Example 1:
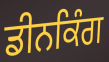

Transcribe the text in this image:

ਡੀਨਕਿੰਗ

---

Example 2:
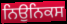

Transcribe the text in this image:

ਨਿਉਨਿਕਸ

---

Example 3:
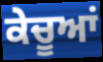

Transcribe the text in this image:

ਕੇਚੂਆਂ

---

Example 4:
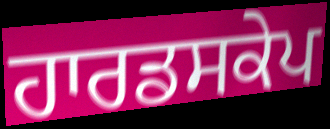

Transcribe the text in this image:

ਹਾਰਡਸਕੇਪ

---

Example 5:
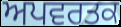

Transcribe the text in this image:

ਅਪਵਰਤਕ